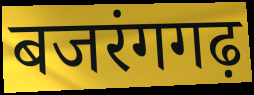
बजरंगगढ़